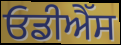
ਓਡੀਐੱਸ